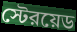
স্টেরয়েড